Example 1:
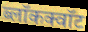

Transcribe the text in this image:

ब्लॉकक्वॉट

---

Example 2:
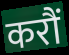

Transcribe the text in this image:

करौं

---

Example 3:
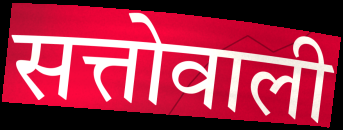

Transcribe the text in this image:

सत्तोवाली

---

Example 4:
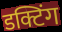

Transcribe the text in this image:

डक्टिंग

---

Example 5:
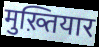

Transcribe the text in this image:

मुख़्तियार